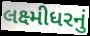
લક્ષ્મીધરનું